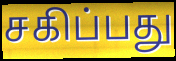
சகிப்பது